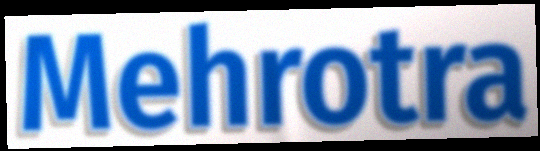
Mehrotra